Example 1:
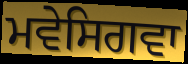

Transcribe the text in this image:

ਮਵੇਸਿਗਵਾ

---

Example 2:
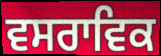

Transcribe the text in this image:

ਵਸਰਾਵਿਕ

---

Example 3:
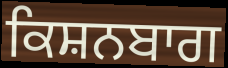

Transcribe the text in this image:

ਕਿਸ਼ਨਬਾਗ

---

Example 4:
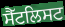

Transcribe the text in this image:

ਸੈੱਟਲਿਸਟ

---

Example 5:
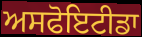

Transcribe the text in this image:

ਅਸਫੋਇਟੀਡਾ